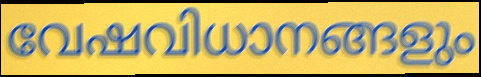
വേഷവിധാനങ്ങളും